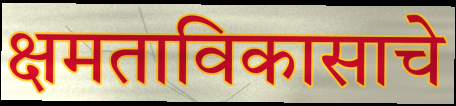
क्षमताविकासाचे